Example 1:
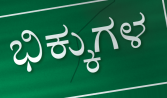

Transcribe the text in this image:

ಭಿಕ್ಕುಗಳ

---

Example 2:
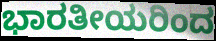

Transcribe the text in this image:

ಭಾರತೀಯರಿಂದ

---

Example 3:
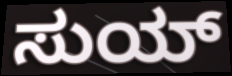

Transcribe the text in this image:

ಸುಯ್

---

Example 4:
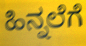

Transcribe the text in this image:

ಹಿನ್ನಲೆಗೆ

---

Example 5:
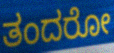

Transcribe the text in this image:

ತಂದರೋ